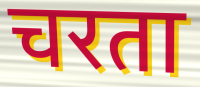
चरता